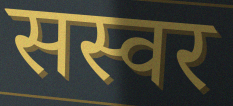
सस्वर